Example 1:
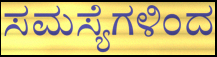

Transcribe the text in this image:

ಸಮಸ್ಯೆಗಳಿಂದ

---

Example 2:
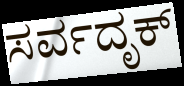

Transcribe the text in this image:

ಸರ್ವದೃಕ್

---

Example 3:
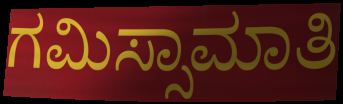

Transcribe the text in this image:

ಗಮಿಸ್ಸಾಮಾತಿ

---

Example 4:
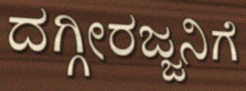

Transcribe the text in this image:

ದಗ್ಗೀರಜ್ಜನಿಗೆ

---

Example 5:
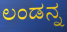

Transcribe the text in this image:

ಲಂಡನ್ನ